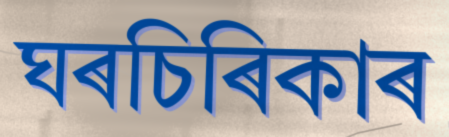
ঘৰচিৰিকাৰ